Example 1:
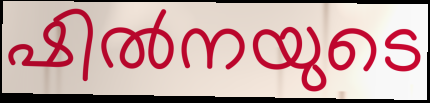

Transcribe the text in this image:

ഷിൽനയുടെ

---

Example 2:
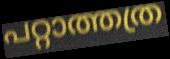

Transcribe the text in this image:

പറ്റാത്തത്ര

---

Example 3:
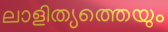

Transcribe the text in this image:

ലാളിത്യത്തെയും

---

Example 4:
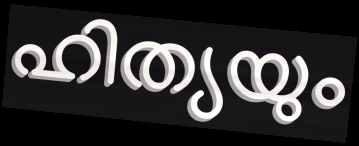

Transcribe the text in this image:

ഹിത്യയും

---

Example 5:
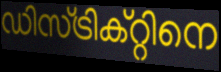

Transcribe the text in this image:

ഡിസ്ട്രിക്റ്റിനെ